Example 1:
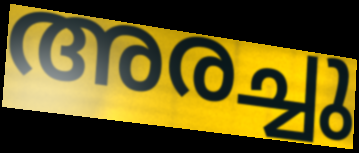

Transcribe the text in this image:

അരച്ചു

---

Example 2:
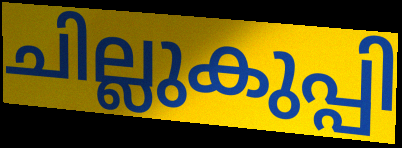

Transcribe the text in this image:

ചില്ലുകുപ്പി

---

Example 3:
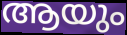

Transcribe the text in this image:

ആയും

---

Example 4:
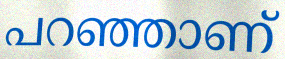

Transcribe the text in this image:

പറഞ്ഞാണ്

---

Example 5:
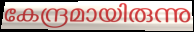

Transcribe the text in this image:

കേന്ദ്രമായിരുന്നു